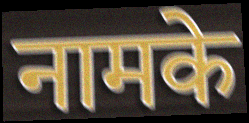
नामके